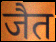
जैत